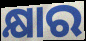
କ୍ଷାର